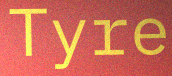
Tyre